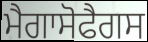
ਮੈਗਾਸੋਫੈਗਸ